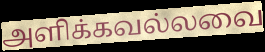
அளிக்கவல்லவை